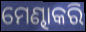
ମେଣ୍ଢାକରି